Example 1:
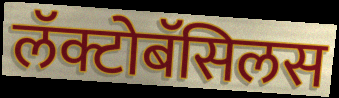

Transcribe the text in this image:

लॅक्टोबॅसिलस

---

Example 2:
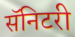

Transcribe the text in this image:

सॅनिटरी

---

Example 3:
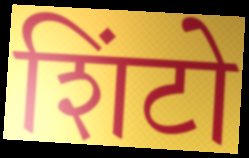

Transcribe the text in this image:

शिंटो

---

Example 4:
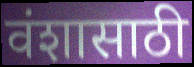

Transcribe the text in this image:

वंशासाठी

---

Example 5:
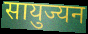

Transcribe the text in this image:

सायुज्यन